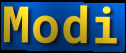
Modi